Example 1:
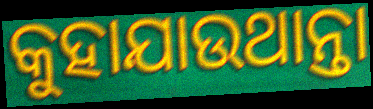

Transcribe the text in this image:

କୁହାଯାଉଥାନ୍ତା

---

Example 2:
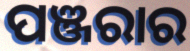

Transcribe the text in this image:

ପଞ୍ଜରାର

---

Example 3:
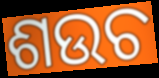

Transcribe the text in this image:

ଶଉଚ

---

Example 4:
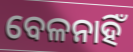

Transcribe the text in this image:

ବେଳନାହିଁ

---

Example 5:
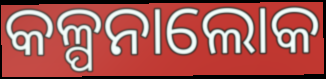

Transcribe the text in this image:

କଳ୍ପନାଲୋକ